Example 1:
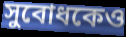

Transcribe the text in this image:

সুবোধকেও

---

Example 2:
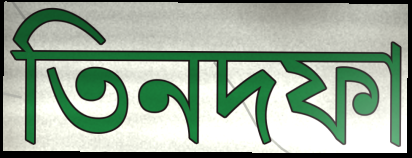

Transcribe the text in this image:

তিনদফা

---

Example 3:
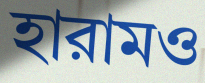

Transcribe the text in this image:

হারামও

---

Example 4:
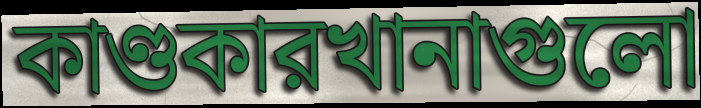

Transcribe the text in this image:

কাণ্ডকারখানাগুলো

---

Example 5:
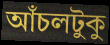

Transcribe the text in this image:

আঁচলটুকু